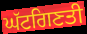
ਘੱਟਗਿਣਤੀ